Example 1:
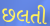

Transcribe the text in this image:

છલતી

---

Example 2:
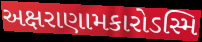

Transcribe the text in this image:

અક્ષરાણામકારોઽસ્મિ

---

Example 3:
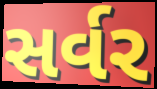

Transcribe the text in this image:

સર્વર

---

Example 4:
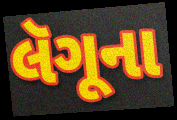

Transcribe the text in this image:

લૅગૂના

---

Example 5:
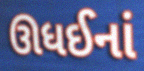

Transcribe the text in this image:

ઊધઈનાં